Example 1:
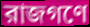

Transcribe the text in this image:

রাজগণে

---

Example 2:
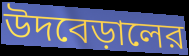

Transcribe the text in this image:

উদবেড়ালের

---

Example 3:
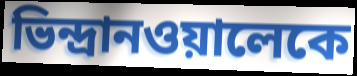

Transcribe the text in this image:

ভিন্দ্রানওয়ালেকে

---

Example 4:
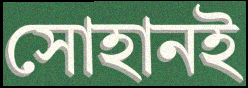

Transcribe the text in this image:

সোহানই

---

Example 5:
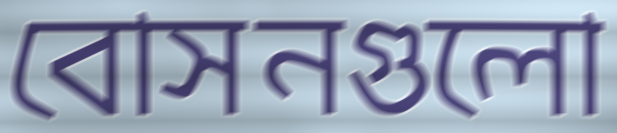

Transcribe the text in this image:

বোসনগুলো